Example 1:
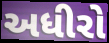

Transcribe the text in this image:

અધીરો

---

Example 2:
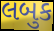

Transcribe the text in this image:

લબુક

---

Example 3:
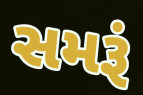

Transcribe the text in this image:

સમરૂં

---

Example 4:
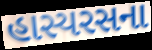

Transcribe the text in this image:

હાસ્યરસના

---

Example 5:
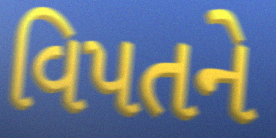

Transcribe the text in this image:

વિપતને